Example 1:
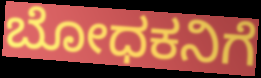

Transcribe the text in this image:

ಬೋಧಕನಿಗೆ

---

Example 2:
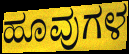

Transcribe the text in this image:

ಹೂವುಗಳ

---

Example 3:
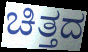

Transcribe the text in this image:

ಚಿತ್ತದ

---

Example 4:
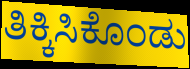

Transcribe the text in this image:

ತಿಕ್ಕಿಸಿಕೊಂಡು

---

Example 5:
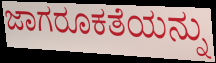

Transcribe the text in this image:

ಜಾಗರೂಕತೆಯನ್ನು